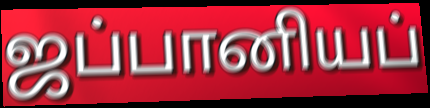
ஜப்பானியப்